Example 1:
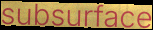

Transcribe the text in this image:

subsurface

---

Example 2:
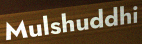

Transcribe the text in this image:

Mulshuddhi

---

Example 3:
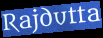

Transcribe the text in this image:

Rajdutta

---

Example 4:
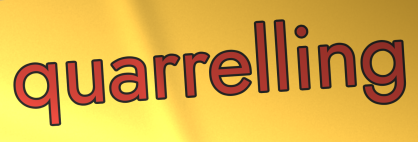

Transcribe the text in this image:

quarrelling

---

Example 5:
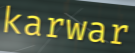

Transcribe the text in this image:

karwar